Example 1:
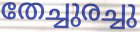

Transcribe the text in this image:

തേച്ചുരച്ചു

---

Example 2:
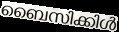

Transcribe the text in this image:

ബൈസിക്കിൾ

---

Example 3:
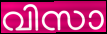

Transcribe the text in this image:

വിസാ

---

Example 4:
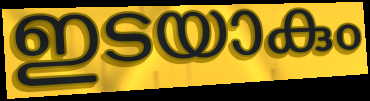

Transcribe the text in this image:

ഇടയാകും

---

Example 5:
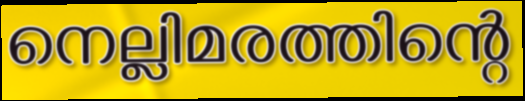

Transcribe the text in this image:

നെല്ലിമരത്തിന്റെ